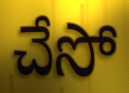
చేసో